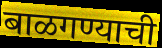
बाळगण्याची